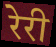
रेरी